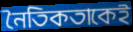
নৈতিকতাকেই